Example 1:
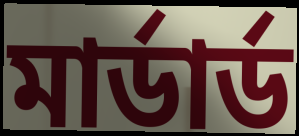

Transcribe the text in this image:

মার্ডার্ড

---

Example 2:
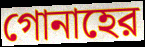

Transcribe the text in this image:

গোনাহের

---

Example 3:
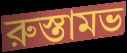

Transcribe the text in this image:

রুস্তামভ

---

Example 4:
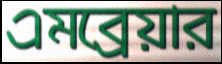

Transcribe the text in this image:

এমব্রেয়ার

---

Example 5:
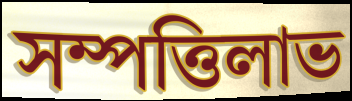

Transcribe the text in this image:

সম্পত্তিলাভ